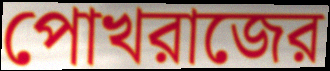
পোখরাজের